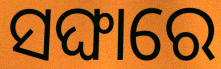
ସଙ୍ଘାରେ